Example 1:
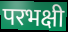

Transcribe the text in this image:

परभक्षी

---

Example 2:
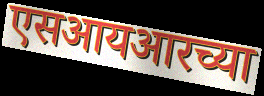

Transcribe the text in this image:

एसआयआरच्या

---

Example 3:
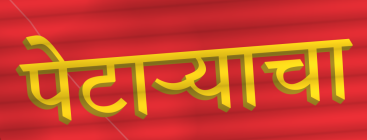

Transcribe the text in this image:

पेटाऱ्याचा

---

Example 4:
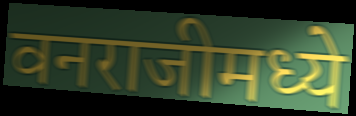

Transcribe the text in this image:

वनराजीमध्ये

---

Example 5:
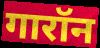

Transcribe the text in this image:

गारॉन